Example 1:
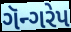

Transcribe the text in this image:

ગૅન્ગરેપ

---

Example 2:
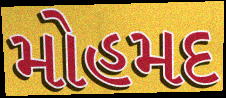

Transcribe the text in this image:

મોહમદ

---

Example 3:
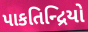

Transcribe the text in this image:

પાકતિન્દ્રિયો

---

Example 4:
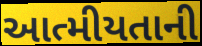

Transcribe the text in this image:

આત્મીયતાની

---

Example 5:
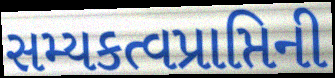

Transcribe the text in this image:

સમ્યકત્વપ્રાપ્તિની